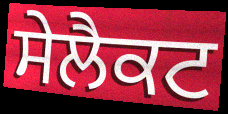
ਸੇਲੈਕਟ